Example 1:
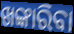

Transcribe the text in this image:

ଖଙ୍କାରିବା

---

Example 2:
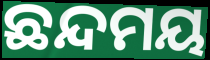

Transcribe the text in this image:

ଛନ୍ଦମୟ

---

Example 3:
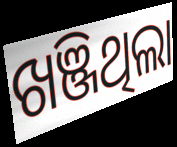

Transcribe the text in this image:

ଖଞ୍ଜିଥିଲା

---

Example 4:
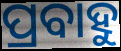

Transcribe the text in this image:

ପ୍ରବାହୁ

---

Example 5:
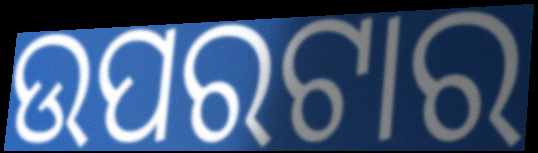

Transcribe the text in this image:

ଉପରଟାର